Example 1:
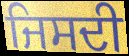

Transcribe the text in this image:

ਜਿਸਦੀ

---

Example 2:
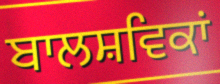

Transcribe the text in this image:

ਬਾਲਸ਼ਵਿਕਾਂ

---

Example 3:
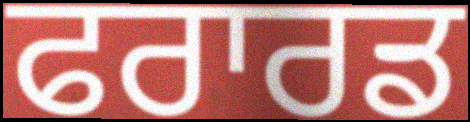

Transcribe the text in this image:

ਫਰਾਰਡ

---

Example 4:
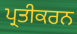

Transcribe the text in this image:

ਪ੍ਰਤੀਕਰਨ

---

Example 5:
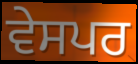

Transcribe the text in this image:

ਵੇਸਪਰ